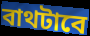
বাথটাবে